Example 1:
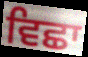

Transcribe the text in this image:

ਵਿਛਾ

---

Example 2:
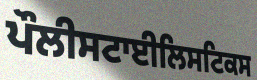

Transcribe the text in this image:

ਪੌਲੀਸਟਾਈਲਿਸਟਿਕਸ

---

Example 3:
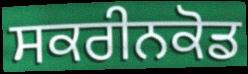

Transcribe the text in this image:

ਸਕਰੀਨਕੋਡ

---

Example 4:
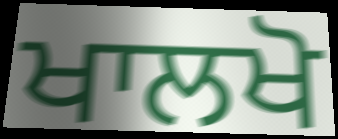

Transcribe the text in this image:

ਖਾਲਖੋ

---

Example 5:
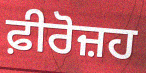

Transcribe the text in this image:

ਫ਼ੀਰੋਜ਼ਹ